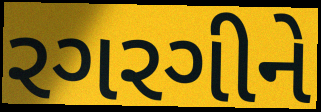
રગરગીને